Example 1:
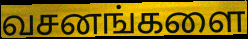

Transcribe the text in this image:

வசனங்களை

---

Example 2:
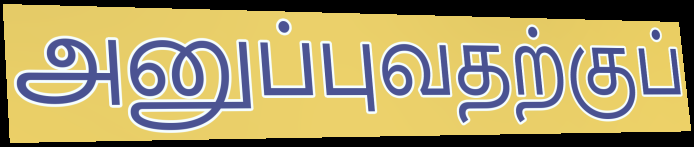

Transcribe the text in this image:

அனுப்புவதற்குப்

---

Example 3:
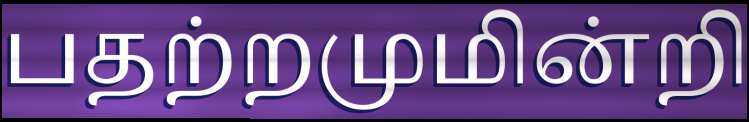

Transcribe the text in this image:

பதற்றமுமின்றி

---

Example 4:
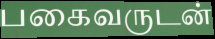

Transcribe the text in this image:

பகைவருடன்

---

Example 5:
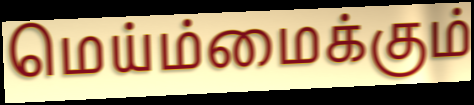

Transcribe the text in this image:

மெய்ம்மைக்கும்